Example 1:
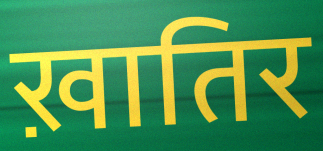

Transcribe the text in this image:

ख़ातिर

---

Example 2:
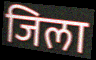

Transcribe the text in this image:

जिला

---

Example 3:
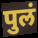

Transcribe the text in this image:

पुलं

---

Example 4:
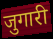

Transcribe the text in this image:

जुगारी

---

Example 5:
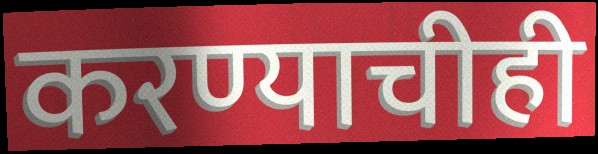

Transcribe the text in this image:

करण्याचीही